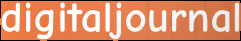
digitaljournal